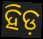
ହିଡ଼